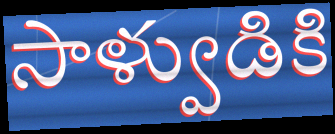
సాళ్వుడికి